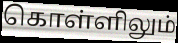
கொள்ளிலும்